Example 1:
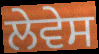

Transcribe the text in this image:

ਲੇਵੇਸ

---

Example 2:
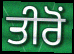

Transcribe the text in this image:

ਤੀਰੋਂ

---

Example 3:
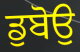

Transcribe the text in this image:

ਡੁਬੋਉ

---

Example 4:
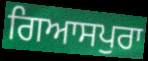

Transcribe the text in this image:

ਗਿਆਸਪੁਰਾ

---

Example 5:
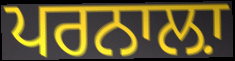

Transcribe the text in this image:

ਪਰਨਾਲ਼ਾ